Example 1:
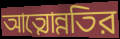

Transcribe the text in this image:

আত্মোন্নতির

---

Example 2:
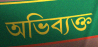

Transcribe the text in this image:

অভিব্যক্ত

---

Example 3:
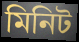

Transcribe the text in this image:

মিনিট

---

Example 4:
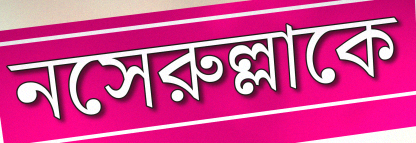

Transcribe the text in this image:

নসেরুল্লাকে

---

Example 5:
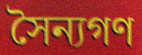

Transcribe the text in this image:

সৈন্যগণ